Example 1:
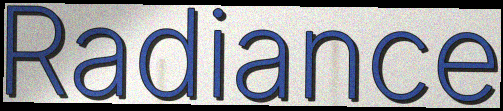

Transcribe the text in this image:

Radiance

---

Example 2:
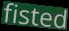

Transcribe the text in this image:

fisted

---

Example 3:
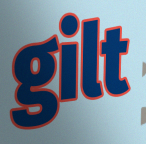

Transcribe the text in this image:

gilt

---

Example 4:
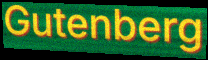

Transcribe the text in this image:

Gutenberg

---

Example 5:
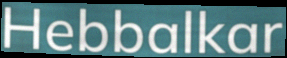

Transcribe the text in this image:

Hebbalkar